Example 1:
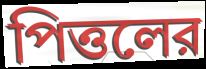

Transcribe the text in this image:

পিত্তলের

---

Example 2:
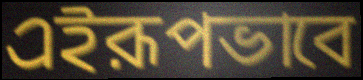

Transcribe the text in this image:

এইরূপভাবে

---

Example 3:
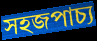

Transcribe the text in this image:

সহজপাচ্য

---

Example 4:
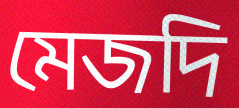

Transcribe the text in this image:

মেজদি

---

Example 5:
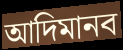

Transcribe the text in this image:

আদিমানব